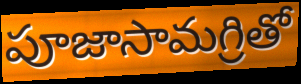
పూజాసామగ్రితో